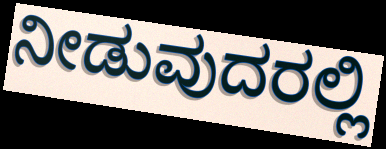
ನೀಡುವುದರಲ್ಲಿ